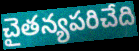
చైతన్యపరిచేది